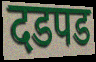
दडपड